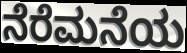
ನೆರೆಮನೆಯ